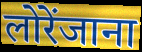
लोरेंजाना